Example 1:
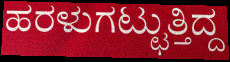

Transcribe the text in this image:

ಹರಳುಗಟ್ಟುತ್ತಿದ್ದ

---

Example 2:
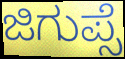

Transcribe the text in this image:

ಜಿಗುಪ್ಸೆ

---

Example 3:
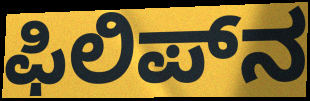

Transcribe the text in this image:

ಫಿಲಿಪ್‌ನ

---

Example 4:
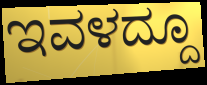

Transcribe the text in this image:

ಇವಳದ್ದೂ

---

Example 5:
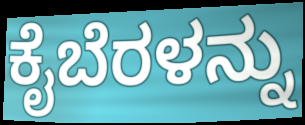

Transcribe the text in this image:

ಕೈಬೆರಳನ್ನು